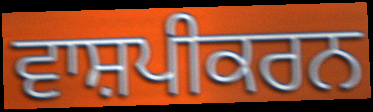
ਵਾਸ਼ਪੀਕਰਨ